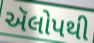
ઍલોપથી